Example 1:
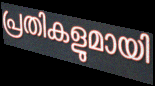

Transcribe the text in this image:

പ്രതികളുമായി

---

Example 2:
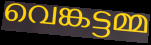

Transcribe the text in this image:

വെങ്കട്ടമ്മ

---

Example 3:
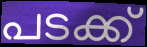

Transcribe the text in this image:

പടക്ക്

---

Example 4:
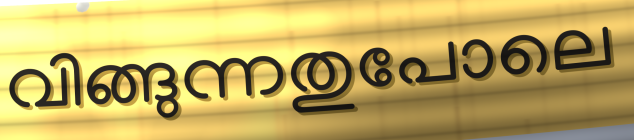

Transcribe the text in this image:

വിങ്ങുന്നതുപോലെ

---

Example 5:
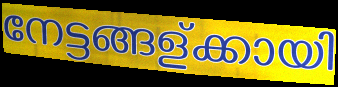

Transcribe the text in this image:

നേട്ടങ്ങള്ക്കായി